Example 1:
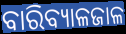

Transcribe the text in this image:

ବାରିବ୍ୟାଳଜାଳ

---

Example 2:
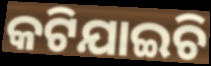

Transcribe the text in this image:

କଟିଯାଇଚି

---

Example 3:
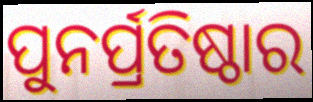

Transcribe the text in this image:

ପୁନର୍ପ୍ରତିଷ୍ଠାର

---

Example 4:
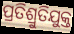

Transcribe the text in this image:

ପ୍ରତିଶ୍ରୁତିଯୁକ୍ତ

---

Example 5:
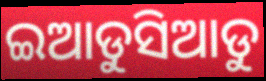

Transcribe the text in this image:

ଇଆଡୁସିଆଡୁ